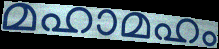
മഹാമഹം